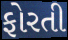
ફોરતી